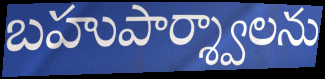
బహుపార్శ్వాలను